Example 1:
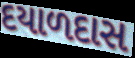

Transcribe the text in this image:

દયાળદાસ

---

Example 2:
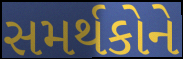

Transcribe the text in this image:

સમર્થકોને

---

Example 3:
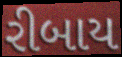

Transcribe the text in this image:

રીબાય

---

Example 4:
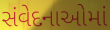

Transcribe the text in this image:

સંવેદનાઓમાં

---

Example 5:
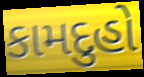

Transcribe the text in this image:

કામદુહો